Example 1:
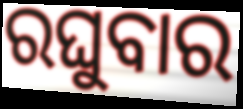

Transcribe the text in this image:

ରଘୁବାର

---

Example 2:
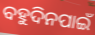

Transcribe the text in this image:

ବହୁଦିନପାଇଁ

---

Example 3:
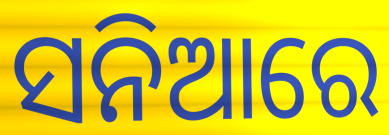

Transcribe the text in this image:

ସନିଆରେ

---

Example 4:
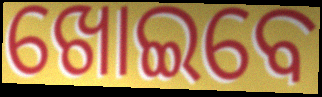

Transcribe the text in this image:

ଖୋଇବେ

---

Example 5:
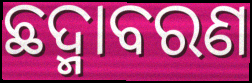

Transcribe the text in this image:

ଛଦ୍ମାବରଣ